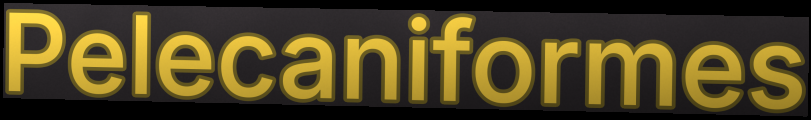
Pelecaniformes